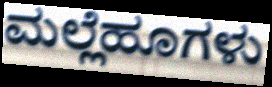
ಮಲ್ಲೆಹೂಗಳು